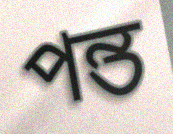
পন্ত